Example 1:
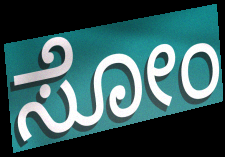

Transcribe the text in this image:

ಸೋಂ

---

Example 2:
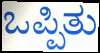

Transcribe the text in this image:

ಒಪ್ಪಿತು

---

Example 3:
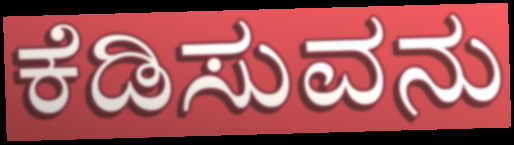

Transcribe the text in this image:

ಕೆಡಿಸುವನು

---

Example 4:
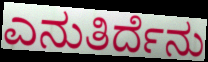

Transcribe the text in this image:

ಎನುತಿರ್ದೆನು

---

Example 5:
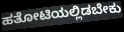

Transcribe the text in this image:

ಹತೋಟಿಯಲ್ಲಿಡಬೇಕು